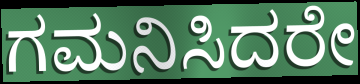
ಗಮನಿಸಿದರೇ